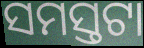
ସମସ୍ତଟା